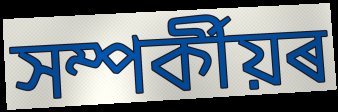
সম্পৰ্কীয়ৰ